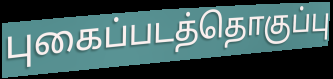
புகைப்படத்தொகுப்பு